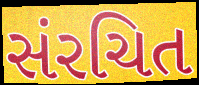
સંરચિત